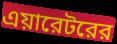
এয়ারেটরের